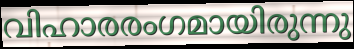
വിഹാരരംഗമായിരുന്നു